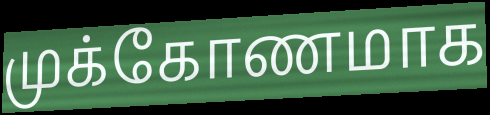
முக்கோணமாக